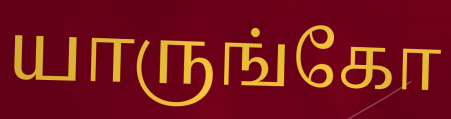
யாருங்கோ